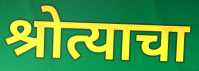
श्रोत्याचा